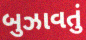
બુઝાવતું